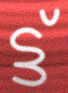
ട്ട്